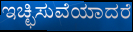
ಇಚ್ಛಿಸುವೆಯಾದರೆ